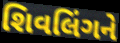
શિવલિંગને